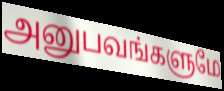
அனுபவங்களுமே